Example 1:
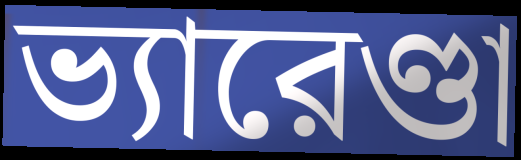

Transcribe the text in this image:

ভ্যারেণ্ডা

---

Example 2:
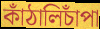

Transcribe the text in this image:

কাঁঠালিচাঁপা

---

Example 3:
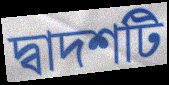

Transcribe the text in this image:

দ্বাদশটি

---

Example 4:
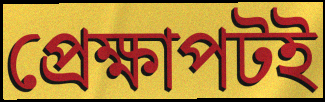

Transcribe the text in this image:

প্রেক্ষাপটই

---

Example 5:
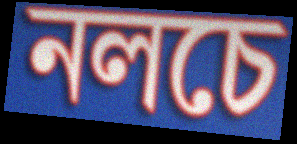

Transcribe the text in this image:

নলচে